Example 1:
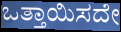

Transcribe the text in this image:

ಒತ್ತಾಯಿಸದೇ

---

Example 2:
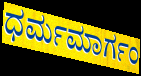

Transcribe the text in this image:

ಧರ್ಮಮಾರ್ಗಂ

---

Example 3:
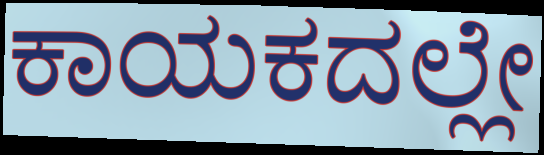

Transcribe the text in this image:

ಕಾಯಕದಲ್ಲೇ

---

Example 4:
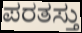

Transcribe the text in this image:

ಪರತಸ್ತು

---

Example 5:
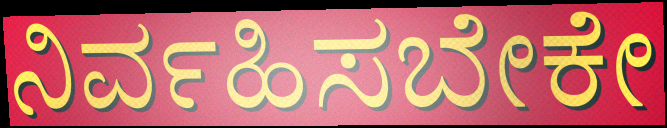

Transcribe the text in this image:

ನಿರ್ವಹಿಸಬೇಕೇ